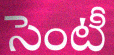
సెంటీ